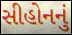
સીહોનનું